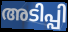
അടിപ്പി